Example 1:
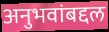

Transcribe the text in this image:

अनुभवांबद्दल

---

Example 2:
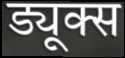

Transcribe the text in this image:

ड्यूक्स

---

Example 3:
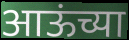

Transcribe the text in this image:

आऊंच्या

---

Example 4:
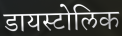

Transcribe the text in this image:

डायस्टोलिक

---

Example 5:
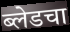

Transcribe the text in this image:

ब्लेडचा